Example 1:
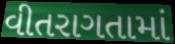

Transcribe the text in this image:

વીતરાગતામાં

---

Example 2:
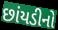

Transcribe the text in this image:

છાંયડીનો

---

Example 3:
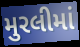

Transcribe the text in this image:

મુરલીમાં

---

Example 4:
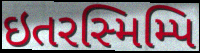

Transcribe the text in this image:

ઇતરસ્મિમ્પિ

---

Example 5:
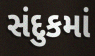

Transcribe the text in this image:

સંદુકમાં